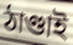
ঠাণ্ডাই